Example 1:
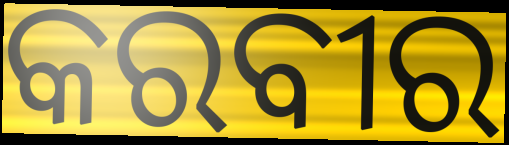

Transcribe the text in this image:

କରବୀର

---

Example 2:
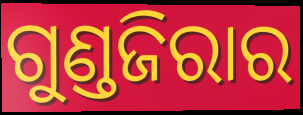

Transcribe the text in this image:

ଗୁଣ୍ଡଜିରାର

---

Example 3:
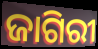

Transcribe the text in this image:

ଜାଗିରୀ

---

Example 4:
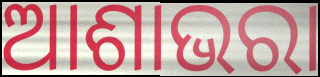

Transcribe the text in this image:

ଆଶାଭରା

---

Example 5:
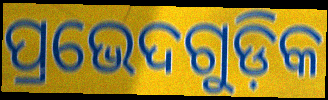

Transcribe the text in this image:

ପ୍ରଭେଦଗୁଡ଼ିକ